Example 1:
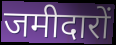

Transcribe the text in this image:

जमीदारों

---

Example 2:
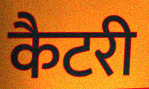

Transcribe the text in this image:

कैटरी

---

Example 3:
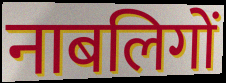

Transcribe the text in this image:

नाबलिगों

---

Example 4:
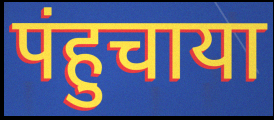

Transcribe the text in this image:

पंहुचाया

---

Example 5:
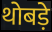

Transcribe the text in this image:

थोबड़े